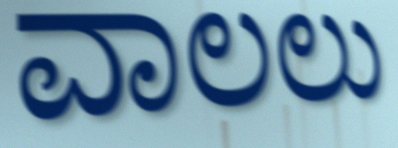
ವಾಲಲು